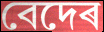
বেদেৰ